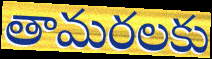
తామరలకు